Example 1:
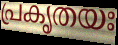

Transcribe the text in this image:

പ്രകൃതയഃ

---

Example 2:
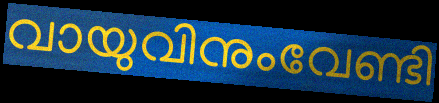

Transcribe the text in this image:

വായുവിനുംവേണ്ടി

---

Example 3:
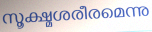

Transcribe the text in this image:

സൂക്ഷ്മശരീരമെന്നു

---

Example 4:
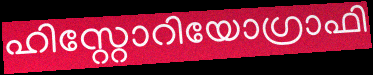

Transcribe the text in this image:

ഹിസ്റ്റോറിയോഗ്രാഫി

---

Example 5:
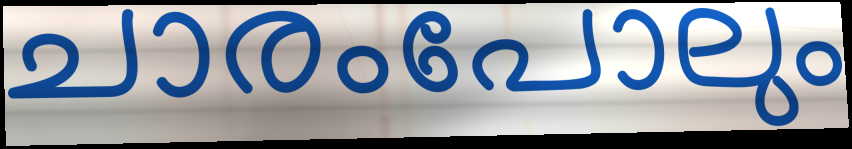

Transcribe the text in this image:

ചാരംപോലും